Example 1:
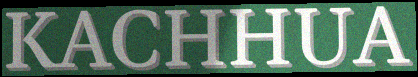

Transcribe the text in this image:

KACHHUA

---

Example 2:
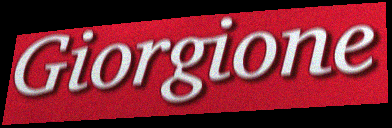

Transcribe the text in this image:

Giorgione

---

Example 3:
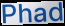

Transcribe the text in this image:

Phad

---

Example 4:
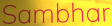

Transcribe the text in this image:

Sambhar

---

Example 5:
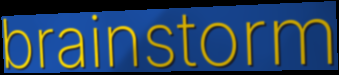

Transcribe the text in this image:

brainstorm